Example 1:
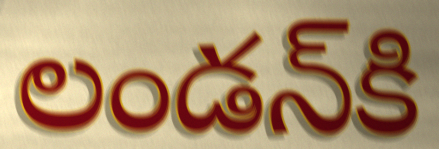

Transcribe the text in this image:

లండన్‌కి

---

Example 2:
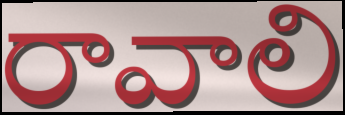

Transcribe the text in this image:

రావాలి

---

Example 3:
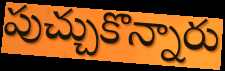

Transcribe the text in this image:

పుచ్చుకొన్నారు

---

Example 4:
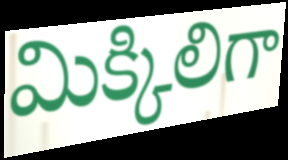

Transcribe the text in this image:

మిక్కిలిగా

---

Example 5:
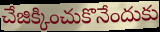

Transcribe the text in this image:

చేజిక్కించుకొనేందుకు